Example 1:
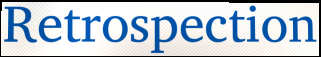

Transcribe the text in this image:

Retrospection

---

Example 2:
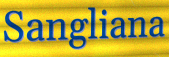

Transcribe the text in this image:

Sangliana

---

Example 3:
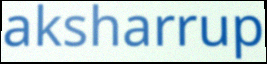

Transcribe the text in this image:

aksharrup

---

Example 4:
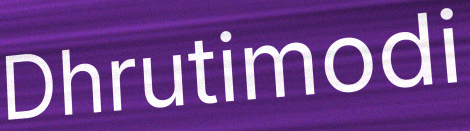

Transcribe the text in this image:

Dhrutimodi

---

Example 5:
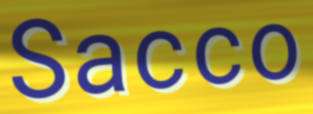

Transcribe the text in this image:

Sacco